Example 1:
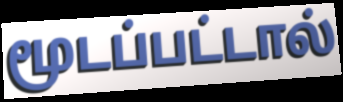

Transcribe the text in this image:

மூடப்பட்டால்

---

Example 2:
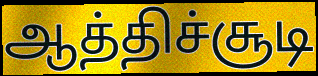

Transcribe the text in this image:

ஆத்திச்சூடி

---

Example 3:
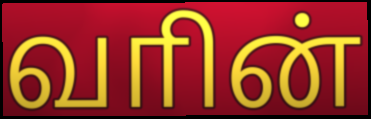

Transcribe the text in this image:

வரின்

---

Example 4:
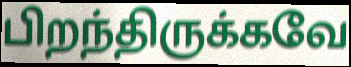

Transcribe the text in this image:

பிறந்திருக்கவே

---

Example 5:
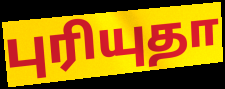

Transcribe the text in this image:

புரியுதா